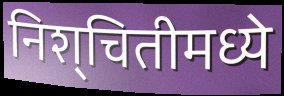
निश्चितीमध्ये